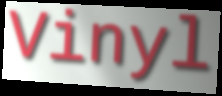
Vinyl